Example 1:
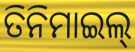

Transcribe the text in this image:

ତିନିମାଇଲ୍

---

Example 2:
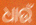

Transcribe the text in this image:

ଧାଉଁ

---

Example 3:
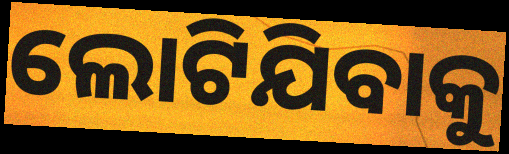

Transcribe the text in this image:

ଲୋଟିଯିବାକୁ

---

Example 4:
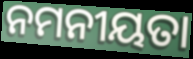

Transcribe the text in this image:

ନମନୀୟତା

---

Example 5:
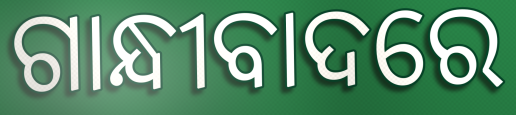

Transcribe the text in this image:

ଗାନ୍ଧୀବାଦରେ